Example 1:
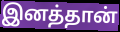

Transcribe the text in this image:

இனத்தான்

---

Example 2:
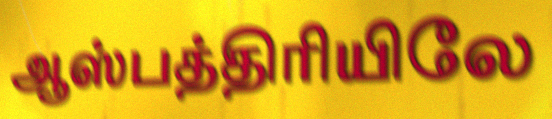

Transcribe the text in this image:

ஆஸ்பத்திரியிலே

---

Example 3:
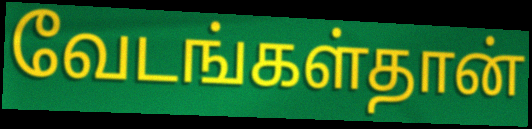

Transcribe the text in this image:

வேடங்கள்தான்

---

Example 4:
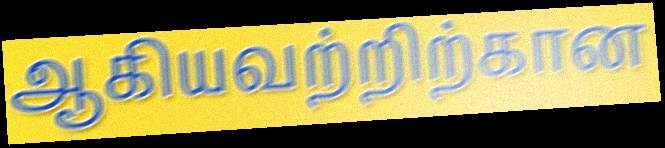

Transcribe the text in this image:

ஆகியவற்றிற்கான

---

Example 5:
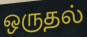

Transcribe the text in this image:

ஒருதல்